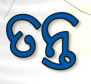
ତନ୍ତ